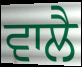
ਵਾਲੈ